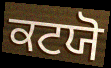
ਕਟਯੋ